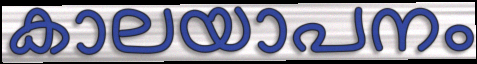
കാലയാപനം